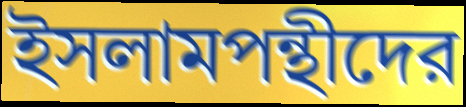
ইসলামপন্থীদের